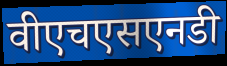
वीएचएसएनडी